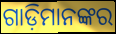
ଗାଡ଼ିମାନଙ୍କର